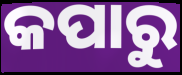
କପାରୁ